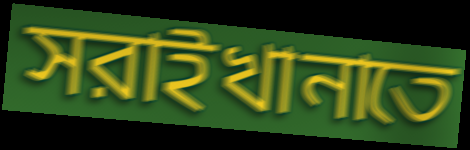
সরাইখানাতে